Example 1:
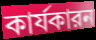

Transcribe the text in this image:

কার্যকারন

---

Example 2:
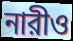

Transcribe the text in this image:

নারীও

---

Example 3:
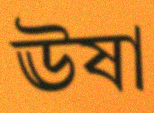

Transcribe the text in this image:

ঊষা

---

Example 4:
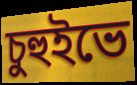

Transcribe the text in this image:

চুহুইভে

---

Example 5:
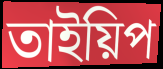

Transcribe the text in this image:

তাইয়িপ